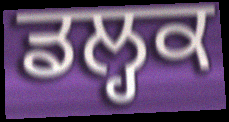
ਡਲ੍ਹਕ